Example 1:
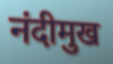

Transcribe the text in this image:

नंदीमुख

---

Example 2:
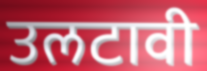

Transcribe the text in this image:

उलटावी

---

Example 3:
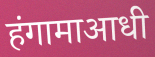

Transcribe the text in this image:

हंगामाआधी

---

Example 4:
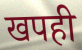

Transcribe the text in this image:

खपही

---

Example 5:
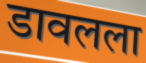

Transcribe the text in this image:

डावलला